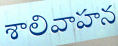
శాలివాహన